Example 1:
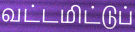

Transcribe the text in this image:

வட்டமிட்டுப்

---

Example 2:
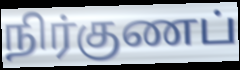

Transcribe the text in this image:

நிர்குணப்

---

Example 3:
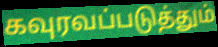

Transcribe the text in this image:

கவுரவப்படுத்தும்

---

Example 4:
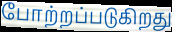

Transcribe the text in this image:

போற்றப்படுகிறது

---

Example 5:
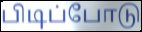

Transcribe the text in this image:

பிடிப்போடு